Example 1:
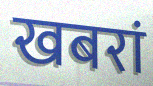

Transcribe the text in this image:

खबरां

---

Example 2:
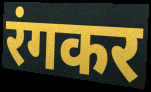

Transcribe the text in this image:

रंगकर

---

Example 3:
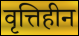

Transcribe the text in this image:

वृत्तिहीन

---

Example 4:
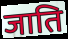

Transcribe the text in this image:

जाति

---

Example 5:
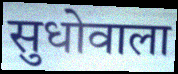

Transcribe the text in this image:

सुधोवाला